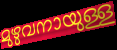
മുഴുവനായുള്ള